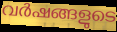
വർഷങ്ങളുടെ